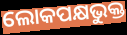
ଲୋକପକ୍ଷଭୁକ୍ତ